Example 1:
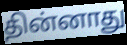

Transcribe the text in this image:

தின்னாது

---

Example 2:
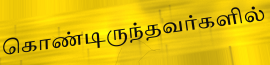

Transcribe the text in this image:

கொண்டிருந்தவர்களில்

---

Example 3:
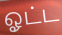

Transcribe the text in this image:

ஓட்ட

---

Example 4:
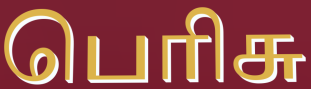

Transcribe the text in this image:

பெரிசு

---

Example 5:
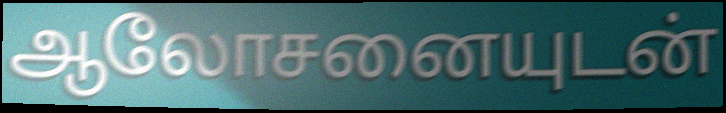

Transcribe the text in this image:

ஆலோசனையுடன்